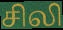
சிலி